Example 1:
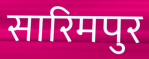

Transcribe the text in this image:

सारिमपुर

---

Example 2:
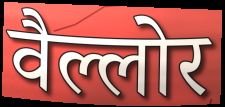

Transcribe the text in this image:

वैल्लोर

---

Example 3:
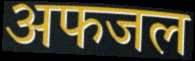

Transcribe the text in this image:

अफजल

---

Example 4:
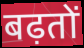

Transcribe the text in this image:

बढ़तों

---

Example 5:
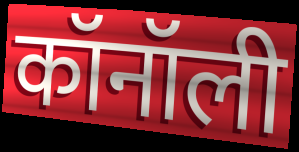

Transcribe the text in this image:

कॉनॉली